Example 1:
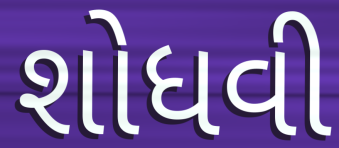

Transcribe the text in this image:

શોધવી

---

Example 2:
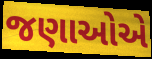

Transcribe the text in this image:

જણાઓએ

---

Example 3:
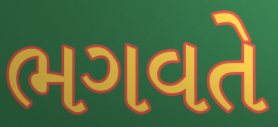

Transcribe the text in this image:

ભગવતે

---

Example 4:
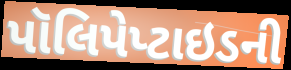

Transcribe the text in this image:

પૉલિપેપ્ટાઇડની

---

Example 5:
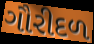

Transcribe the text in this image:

ગૌરીદળ